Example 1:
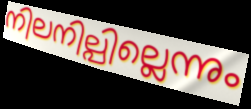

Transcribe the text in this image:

നിലനില്പില്ലെന്നും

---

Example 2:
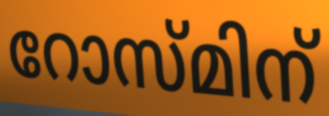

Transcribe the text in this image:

റോസ്മിന്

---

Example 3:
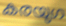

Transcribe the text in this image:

കരയുഗ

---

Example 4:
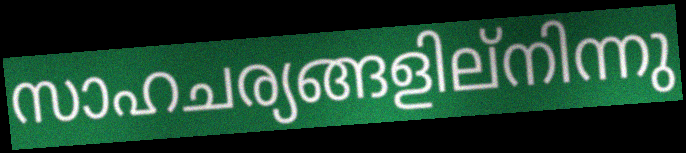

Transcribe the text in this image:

സാഹചര്യങ്ങളില്നിന്നു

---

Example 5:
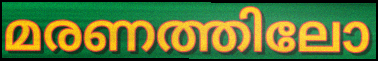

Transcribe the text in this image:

മരണത്തിലോ